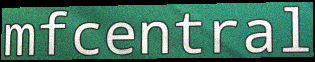
mfcentral